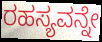
ರಹಸ್ಯವನ್ನೇ